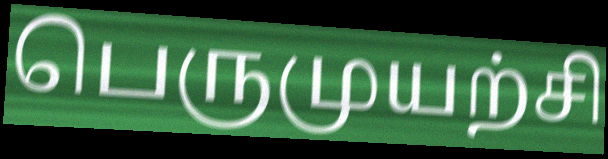
பெருமுயற்சி